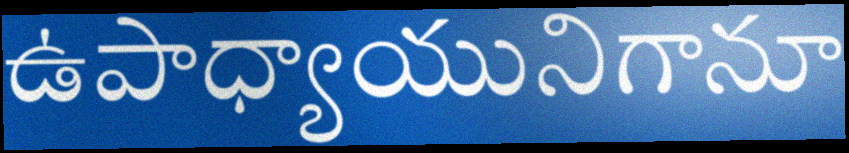
ఉపాధ్యాయునిగానూ